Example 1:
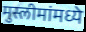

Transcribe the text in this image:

मुस्लीमांमध्ये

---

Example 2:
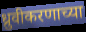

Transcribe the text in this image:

ध्रुवीकरणाच्या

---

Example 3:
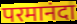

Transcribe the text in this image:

परमानंदा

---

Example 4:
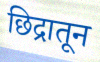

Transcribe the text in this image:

छिद्रातून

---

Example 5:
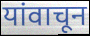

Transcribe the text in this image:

यांवाचून